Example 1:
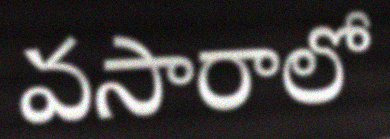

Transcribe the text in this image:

వసారాలో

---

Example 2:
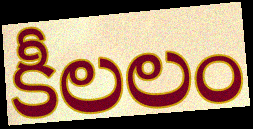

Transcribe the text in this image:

కీలలం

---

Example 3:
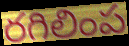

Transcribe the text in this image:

రగిలింప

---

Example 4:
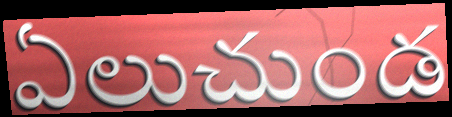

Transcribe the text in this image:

ఏలుచుండ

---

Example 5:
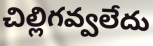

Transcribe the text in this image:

చిల్లిగవ్వలేదు